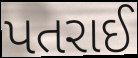
પતરાઈ